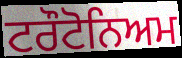
ਟਰੌਟੋਨਿਅਮ